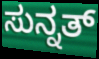
ಸುನ್ನತ್